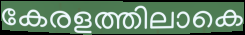
കേരളത്തിലാകെ